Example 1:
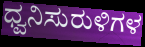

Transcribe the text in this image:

ಧ್ವನಿಸುರುಳಿಗಳ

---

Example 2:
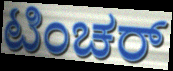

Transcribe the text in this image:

ಟಿಂಚರ್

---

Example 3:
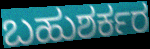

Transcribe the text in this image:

ಬಹುಶರ್ಕರ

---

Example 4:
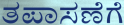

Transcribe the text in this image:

ತಪಾಸಣೆಗೆ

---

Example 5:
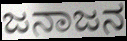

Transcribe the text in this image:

ಜನಾಜನ